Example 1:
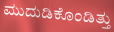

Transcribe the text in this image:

ಮುದುಡಿಕೊಂಡಿತ್ತು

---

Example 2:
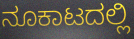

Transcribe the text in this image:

ನೂಕಾಟದಲ್ಲಿ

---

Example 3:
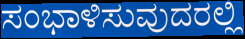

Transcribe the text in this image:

ಸಂಭಾಳಿಸುವುದರಲ್ಲಿ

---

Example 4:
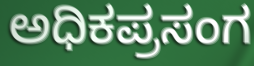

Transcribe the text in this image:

ಅಧಿಕಪ್ರಸಂಗ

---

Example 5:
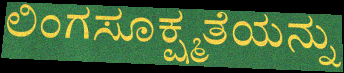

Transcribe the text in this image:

ಲಿಂಗಸೂಕ್ಷ್ಮತೆಯನ್ನು